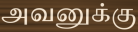
அவனுக்கு